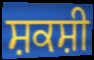
ਸ਼ਕਸ਼ੀ